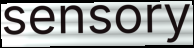
sensory